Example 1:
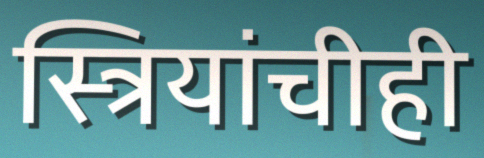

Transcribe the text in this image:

स्त्रियांचीही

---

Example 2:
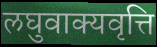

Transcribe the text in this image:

लघुवाक्यवृत्ति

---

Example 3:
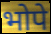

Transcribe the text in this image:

भोपे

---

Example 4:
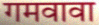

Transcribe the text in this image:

गमवावा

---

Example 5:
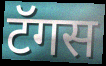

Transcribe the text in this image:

टॅगस